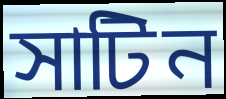
সাটিন